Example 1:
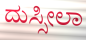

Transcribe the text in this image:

ದುಸ್ಸೀಲಾ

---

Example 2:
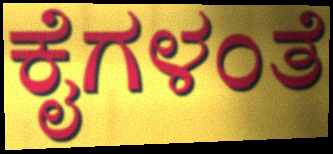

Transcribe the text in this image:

ಕೈಗಳಂತೆ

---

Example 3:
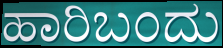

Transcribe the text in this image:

ಹಾರಿಬಂದು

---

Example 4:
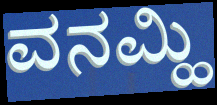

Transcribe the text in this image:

ವನಮ್ಹಿ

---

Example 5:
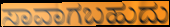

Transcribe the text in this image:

ಸಾವಾಗಬಹುದು